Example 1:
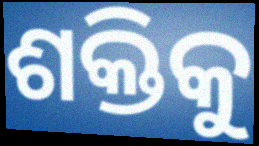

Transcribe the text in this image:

ଶକ୍ତିକୁ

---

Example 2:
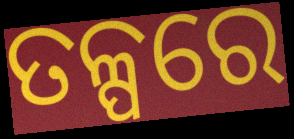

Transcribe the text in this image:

ତଳ୍ପରେ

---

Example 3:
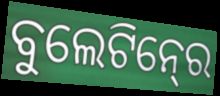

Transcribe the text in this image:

ବୁଲେଟିନ୍‍ରେ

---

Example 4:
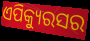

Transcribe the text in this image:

ଏପିକ୍ୟୁରସର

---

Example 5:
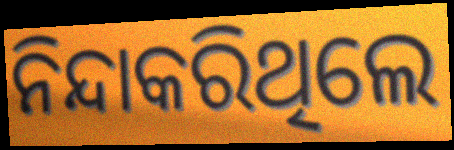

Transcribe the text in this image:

ନିନ୍ଦାକରିଥିଲେ